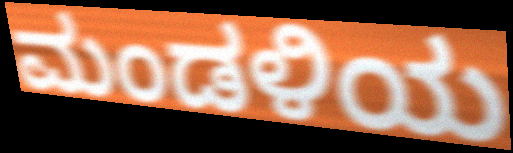
ಮಂಡಳಿಯ